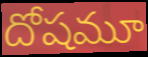
దోషమూ